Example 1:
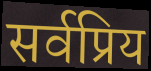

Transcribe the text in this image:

सर्वप्रिय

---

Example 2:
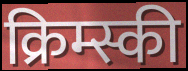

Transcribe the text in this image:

क्रिम्स्की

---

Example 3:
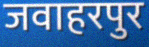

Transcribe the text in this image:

जवाहरपुर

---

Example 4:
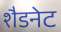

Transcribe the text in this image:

शैडनेट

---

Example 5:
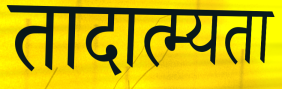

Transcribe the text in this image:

तादात्म्यता